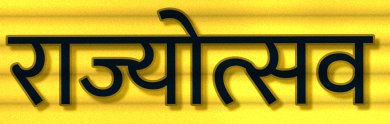
राज्योत्सव